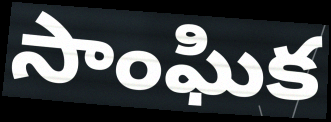
సాంఘిక